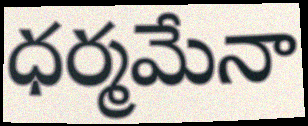
ధర్మమేనా